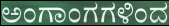
ಅಂಗಾಂಗಗಳಿಂದ